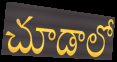
చూడాలో